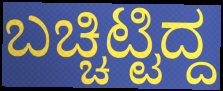
ಬಚ್ಚಿಟ್ಟಿದ್ದ